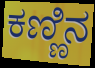
ಕಣ್ಣಿನ